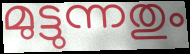
മുട്ടുന്നതും